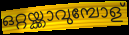
ഒറ്റയ്ക്കാവുമ്പോള്